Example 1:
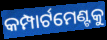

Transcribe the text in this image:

କମ୍ପାର୍ଟମେଣ୍ଟକୁ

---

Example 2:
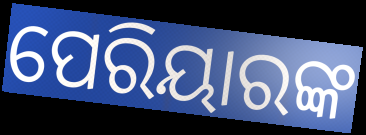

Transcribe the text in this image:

ପେରିୟାରଙ୍କ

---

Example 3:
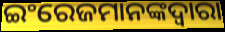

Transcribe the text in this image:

ଇଂରେଜମାନଙ୍କଦ୍ୱାରା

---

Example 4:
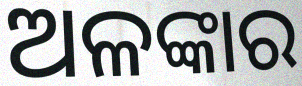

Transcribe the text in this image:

ଅଳଙ୍କାର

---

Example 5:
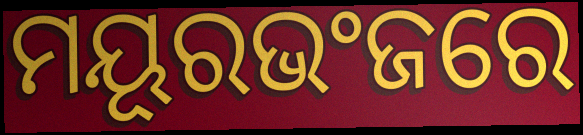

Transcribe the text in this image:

ମୟୂରଭଂଜରେ